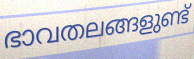
ഭാവതലങ്ങളുണ്ട്